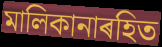
মালিকানাৰহিত